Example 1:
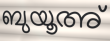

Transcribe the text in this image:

ബുയൂഅ്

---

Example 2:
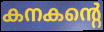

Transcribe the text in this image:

കനകന്റെ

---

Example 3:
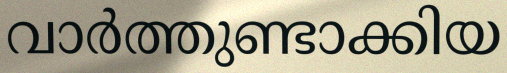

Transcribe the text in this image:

വാർത്തുണ്ടാക്കിയ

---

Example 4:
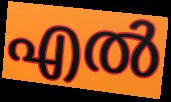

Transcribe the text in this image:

എൽ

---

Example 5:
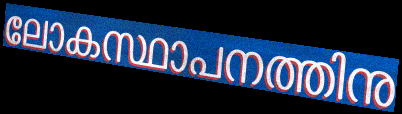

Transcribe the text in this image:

ലോകസ്ഥാപനത്തിനു